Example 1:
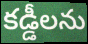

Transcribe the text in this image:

కడ్డీలను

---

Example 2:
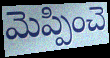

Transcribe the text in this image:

మెప్పించె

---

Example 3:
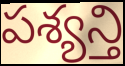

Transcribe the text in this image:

పశ్యన్తి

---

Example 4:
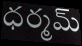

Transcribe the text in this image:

ధర్మమ్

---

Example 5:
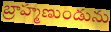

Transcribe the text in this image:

బ్రాహ్మణుండును